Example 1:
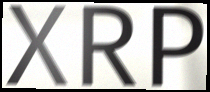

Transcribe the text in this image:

XRP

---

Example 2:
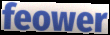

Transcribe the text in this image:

feower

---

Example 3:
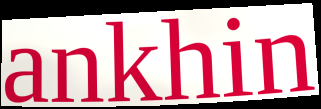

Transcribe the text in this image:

ankhin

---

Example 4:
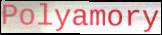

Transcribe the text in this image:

Polyamory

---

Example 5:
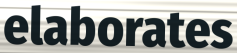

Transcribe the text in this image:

elaborates